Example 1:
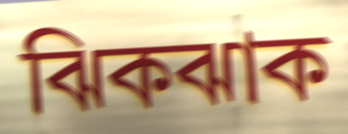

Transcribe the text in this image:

ঝিকঝাক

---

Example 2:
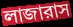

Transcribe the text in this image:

লাজারাস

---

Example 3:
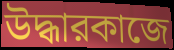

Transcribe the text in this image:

উদ্ধারকাজে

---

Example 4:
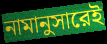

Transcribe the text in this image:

নামানুসারেই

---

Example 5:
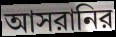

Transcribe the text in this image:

আসরানির